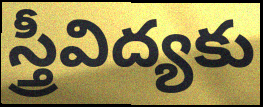
స్త్రీవిద్యకు